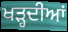
ਖੜ੍ਹਦੀਆਂ